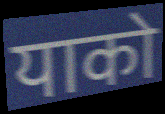
याको